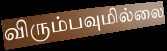
விரும்பவுமில்லை